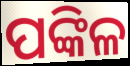
ପଙ୍କିଳ